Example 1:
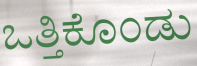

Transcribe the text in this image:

ಒತ್ತಿಕೊಂಡು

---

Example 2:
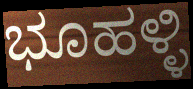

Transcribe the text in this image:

ಭೂಹಳ್ಳಿ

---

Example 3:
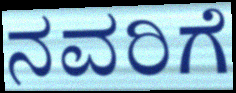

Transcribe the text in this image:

ನವರಿಗೆ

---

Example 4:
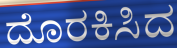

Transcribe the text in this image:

ದೊರಕಿಸಿದ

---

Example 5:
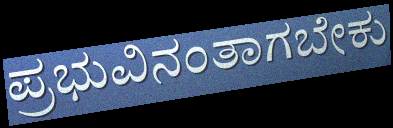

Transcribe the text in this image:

ಪ್ರಭುವಿನಂತಾಗಬೇಕು